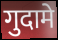
गुदामे